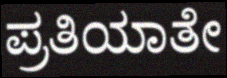
ಪ್ರತಿಯಾತೇ